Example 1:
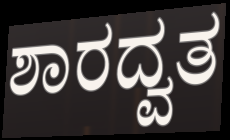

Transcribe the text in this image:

ಶಾರದ್ವತ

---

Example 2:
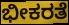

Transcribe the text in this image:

ಭೀಕರತೆ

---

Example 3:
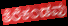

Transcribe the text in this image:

ತೆರೆಕಂಡವು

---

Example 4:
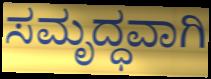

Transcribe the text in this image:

ಸಮೃದ್ಧವಾಗಿ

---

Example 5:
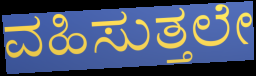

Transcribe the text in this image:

ವಹಿಸುತ್ತಲೇ